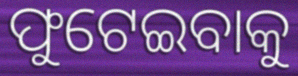
ଫୁଟେଇବାକୁ